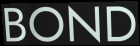
BOND